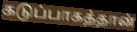
கடுப்பாகத்தான்